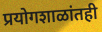
प्रयोगशाळांतही